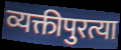
व्यक्तीपुरत्या